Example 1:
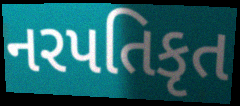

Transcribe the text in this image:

નરપતિકૃત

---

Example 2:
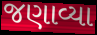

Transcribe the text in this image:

જણાવ્યા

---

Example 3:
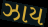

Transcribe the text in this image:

ઝાય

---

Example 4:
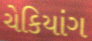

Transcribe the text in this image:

ચેકિયાંગ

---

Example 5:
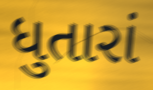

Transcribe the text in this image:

ધુતારાં